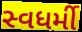
સ્વધર્મી